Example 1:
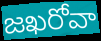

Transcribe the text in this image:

జఖరోవా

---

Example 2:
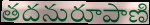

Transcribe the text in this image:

తదనురూపాణి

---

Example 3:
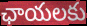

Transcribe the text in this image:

ఛాయలకు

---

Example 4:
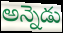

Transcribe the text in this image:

అన్నెడు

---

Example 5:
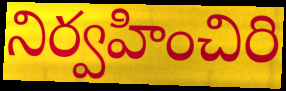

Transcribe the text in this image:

నిర్వహించిరి